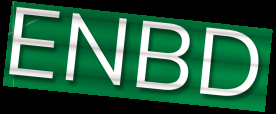
ENBD